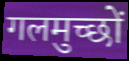
गलमुच्छों